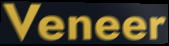
Veneer